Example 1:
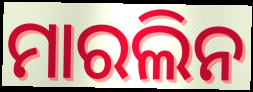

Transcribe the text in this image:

ମାରଲିନ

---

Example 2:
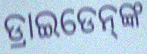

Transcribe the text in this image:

ଡ୍ରାଇଡେନ୍‌ଙ୍କ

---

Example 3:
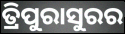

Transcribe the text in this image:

ତ୍ରିପୁରାସୁରର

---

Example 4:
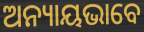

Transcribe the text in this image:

ଅନ୍ୟାୟଭାବେ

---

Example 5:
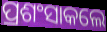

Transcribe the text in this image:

ପ୍ରଶଂସାକଲେ